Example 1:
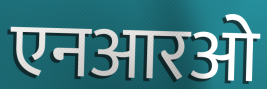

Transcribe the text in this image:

एनआरओ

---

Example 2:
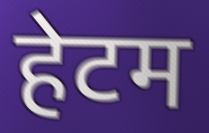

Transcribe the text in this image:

हेटम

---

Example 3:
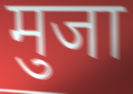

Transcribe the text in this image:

मुजा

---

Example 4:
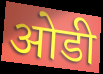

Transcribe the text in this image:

ओडी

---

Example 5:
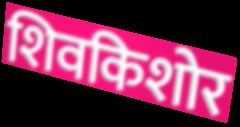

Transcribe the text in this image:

शिवकिशोर